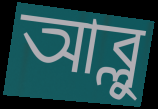
আব্লু